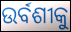
ଉର୍ବଶୀକୁ